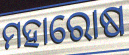
ମହାରୋଷ